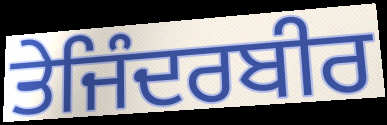
ਤੇਜਿੰਦਰਬੀਰ